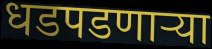
धडपडणाऱ्या